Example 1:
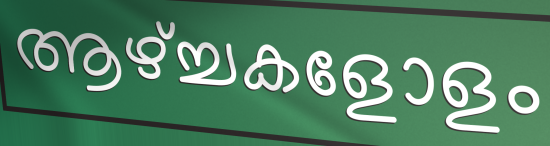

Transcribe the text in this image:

ആഴ്ച്ചകളോളം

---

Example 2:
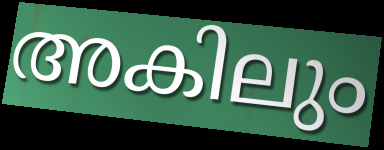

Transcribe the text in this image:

അകിലും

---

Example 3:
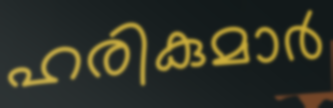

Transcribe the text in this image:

ഹരികുമാർ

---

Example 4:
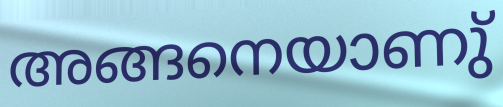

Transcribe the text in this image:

അങ്ങനെയാണു്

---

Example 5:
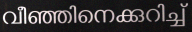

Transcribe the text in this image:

വീഞ്ഞിനെക്കുറിച്ച്